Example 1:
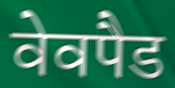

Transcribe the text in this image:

वेवपैड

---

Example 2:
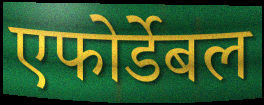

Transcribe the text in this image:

एफोर्डेबल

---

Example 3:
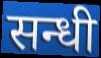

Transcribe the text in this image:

सन्धी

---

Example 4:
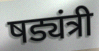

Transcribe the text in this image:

षड्यंत्री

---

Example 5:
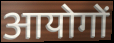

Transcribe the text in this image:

आयोगों